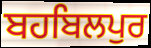
ਬਹਬਿਲਪੁਰ